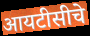
आयटीसीचे